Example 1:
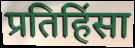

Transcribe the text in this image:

प्रतिहिंसा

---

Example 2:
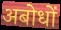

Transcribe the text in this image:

अबोधों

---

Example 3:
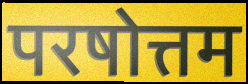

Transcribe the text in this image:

परषोत्तम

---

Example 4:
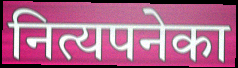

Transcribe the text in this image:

नित्यपनेका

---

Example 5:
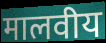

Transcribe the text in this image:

मालवीय